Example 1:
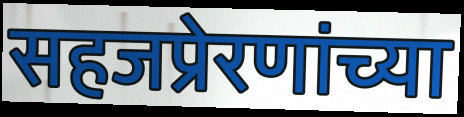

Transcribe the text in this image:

सहजप्रेरणांच्या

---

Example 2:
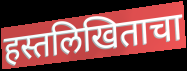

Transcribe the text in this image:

हस्तलिखिताचा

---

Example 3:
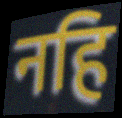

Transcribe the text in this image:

नहि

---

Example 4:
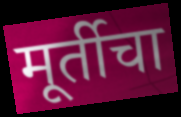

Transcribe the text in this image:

मूर्तीचा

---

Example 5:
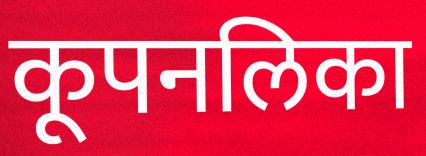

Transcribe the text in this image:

कूपनलिका